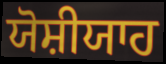
ਯੋਸ਼ੀਯਾਹ